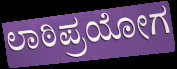
ಲಾಠಿಪ್ರಯೋಗ